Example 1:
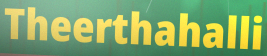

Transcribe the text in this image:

Theerthahalli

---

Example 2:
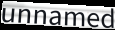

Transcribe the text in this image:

unnamed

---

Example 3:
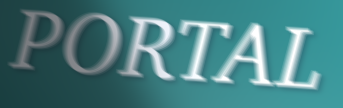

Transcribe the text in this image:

PORTAL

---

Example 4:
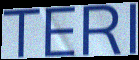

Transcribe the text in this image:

TERI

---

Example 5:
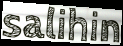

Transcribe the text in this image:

salihin